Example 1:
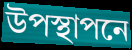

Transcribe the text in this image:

উপস্থাপনে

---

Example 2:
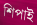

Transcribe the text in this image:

শিপাই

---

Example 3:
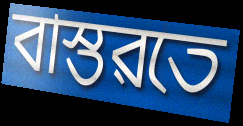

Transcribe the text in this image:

বাস্তৱতে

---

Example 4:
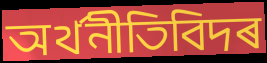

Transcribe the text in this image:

অৰ্থনীতিবিদৰ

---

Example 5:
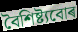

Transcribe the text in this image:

বৈশিষ্ট্যবোৰ